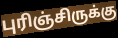
புரிஞ்சிருக்கு